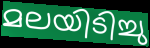
മലയിടിച്ചു